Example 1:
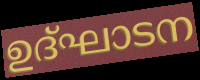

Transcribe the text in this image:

ഉദ്ഘാടന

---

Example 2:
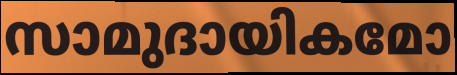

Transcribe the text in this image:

സാമുദായികമോ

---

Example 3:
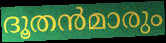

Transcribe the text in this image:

ദൂതൻമാരും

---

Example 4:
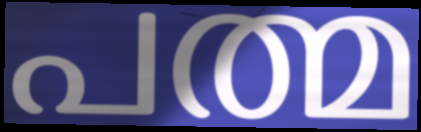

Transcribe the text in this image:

പത്മ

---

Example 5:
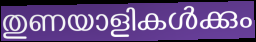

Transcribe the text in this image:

തുണയാളികൾക്കും